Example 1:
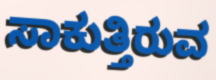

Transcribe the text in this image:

ಸಾಕುತ್ತಿರುವ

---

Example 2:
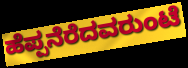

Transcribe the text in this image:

ಹೆಪ್ಪನೆರೆದವರುಂಟೆ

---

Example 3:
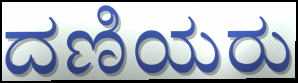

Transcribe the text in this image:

ದಣಿಯರು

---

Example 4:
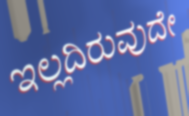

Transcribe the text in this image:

ಇಲ್ಲದಿರುವುದೇ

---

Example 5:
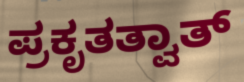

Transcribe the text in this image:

ಪ್ರಕೃತತ್ವಾತ್